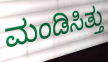
ಮಂಡಿಸಿತ್ತು